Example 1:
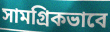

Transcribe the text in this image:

সামগ্রিকভাবে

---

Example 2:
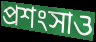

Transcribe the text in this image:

প্রশংসাও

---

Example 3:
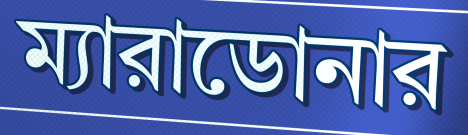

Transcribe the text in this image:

ম্যারাডোনার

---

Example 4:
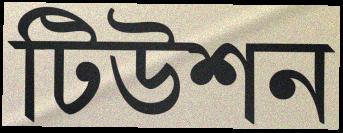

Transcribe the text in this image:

টিউশন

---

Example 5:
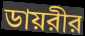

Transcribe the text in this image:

ডায়রীর